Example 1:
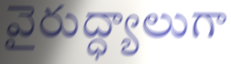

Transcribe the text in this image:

వైరుద్ధ్యాలుగా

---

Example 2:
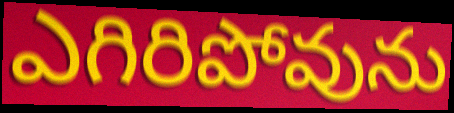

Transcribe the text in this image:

ఎగిరిపోవును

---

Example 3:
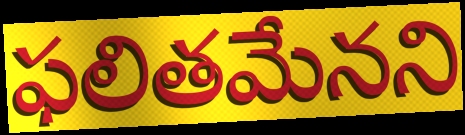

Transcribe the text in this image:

ఫలితమేనని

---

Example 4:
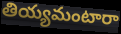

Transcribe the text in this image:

తియ్యమంటారా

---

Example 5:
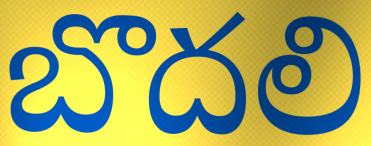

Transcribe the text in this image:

బొదలి